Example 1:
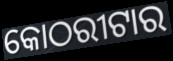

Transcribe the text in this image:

କୋଠରୀଟାର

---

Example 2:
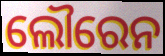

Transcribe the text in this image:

ଲୌରେନ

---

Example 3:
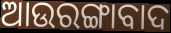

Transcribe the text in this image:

ଆଉରଙ୍ଗାବାଦ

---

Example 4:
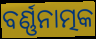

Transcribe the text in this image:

ବର୍ଣ୍ଣନାତ୍ମକ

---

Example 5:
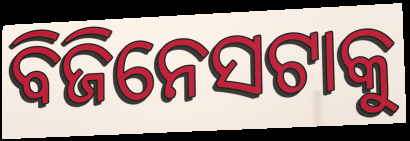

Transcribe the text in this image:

ବିଜିନେସଟାକୁ